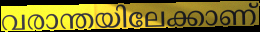
വരാന്തയിലേക്കാണ്